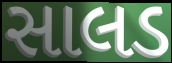
સાલડ